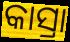
କାସ୍ରା